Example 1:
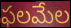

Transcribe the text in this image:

ఫలమేల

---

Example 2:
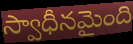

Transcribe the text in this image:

స్వాధీనమైంది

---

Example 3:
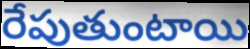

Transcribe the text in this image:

రేపుతుంటాయి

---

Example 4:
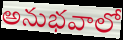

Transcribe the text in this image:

అనుభవాలో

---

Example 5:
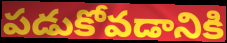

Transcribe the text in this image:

పడుకోవడానికి